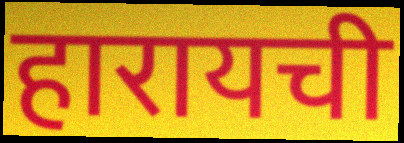
हारायची